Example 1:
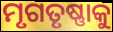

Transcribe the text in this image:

ମୃଗତୃଷ୍ଣାକୁ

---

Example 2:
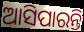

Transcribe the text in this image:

ଆସିପାରନ୍ତି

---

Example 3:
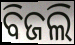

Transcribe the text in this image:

ବିଜଲି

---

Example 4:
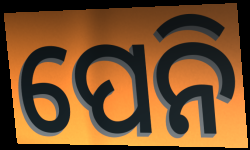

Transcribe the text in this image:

ପେନି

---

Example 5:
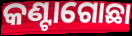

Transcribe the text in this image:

କଣ୍ଟାଗୋଛା